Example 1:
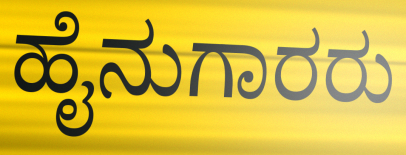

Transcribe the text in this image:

ಹೈನುಗಾರರು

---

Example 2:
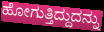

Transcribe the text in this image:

ಹೋಗುತ್ತಿದ್ದುದನ್ನು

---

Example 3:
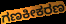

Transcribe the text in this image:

ಗಣಕೀಕರಣ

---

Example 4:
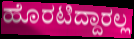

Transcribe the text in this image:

ಹೊರಟಿದ್ದಾರಲ್ಲ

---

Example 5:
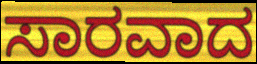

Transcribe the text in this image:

ಸಾರವಾದ